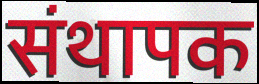
संथापक